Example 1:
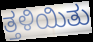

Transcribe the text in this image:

ತ್ತಳಿಯಿತು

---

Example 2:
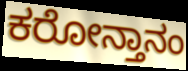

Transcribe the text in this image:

ಕರೋನ್ತಾನಂ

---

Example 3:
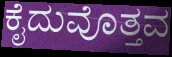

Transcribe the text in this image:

ಕೈದುವೊತ್ತವ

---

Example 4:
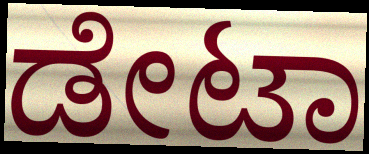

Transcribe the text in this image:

ಡೇಟಾ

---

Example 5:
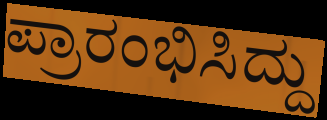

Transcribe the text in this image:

ಪ್ರಾರಂಭಿಸಿದ್ದು